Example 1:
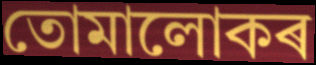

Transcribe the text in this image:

তোমালোকৰ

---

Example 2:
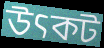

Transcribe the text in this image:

উৎকট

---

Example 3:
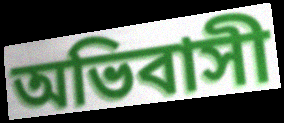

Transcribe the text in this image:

অভিবাসী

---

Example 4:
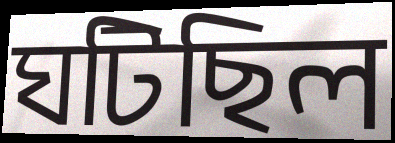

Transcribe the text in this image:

ঘটিছিল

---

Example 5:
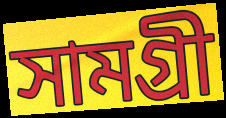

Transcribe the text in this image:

সামগ্ৰী